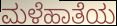
ಮಳೆಹಾತೆಯ